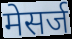
मेसर्ज